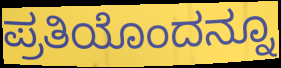
ಪ್ರತಿಯೊಂದನ್ನೂ